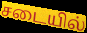
சடையில்